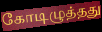
கோடிழுத்தது